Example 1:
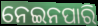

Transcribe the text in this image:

ନେଇନପାରି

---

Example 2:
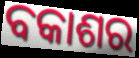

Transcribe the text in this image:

ବକାଶର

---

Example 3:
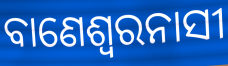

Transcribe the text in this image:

ବାଣେଶ୍ୱରନାସୀ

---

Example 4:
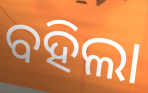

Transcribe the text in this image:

ବହିଲା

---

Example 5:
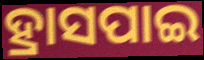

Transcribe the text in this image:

ହ୍ରାସପାଇ